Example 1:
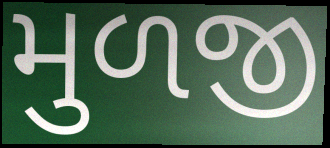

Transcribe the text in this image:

મુળજી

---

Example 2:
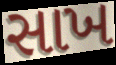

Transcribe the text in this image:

સાખ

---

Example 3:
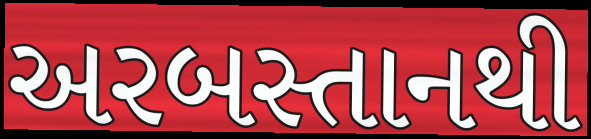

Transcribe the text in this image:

અરબસ્તાનથી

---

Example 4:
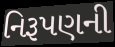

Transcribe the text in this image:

નિરૂપણની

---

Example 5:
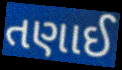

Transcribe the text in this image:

તણાઈ